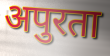
अपुरता